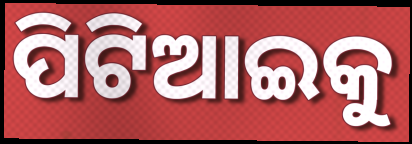
ପିଟିଆଇକୁ